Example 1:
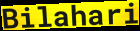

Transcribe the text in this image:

Bilahari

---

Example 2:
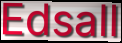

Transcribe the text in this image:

Edsall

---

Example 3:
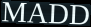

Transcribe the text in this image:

MADD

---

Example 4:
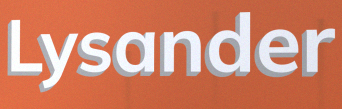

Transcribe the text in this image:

Lysander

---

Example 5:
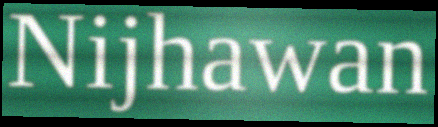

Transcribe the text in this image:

Nijhawan